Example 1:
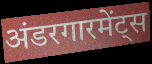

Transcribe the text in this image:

अंडरगारमेंट्स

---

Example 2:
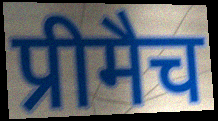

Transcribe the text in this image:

प्रीमैच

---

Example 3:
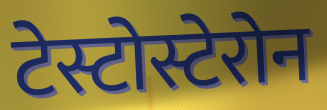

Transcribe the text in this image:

टेस्टोस्टेरोन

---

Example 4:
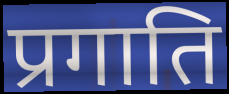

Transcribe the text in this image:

प्रगाति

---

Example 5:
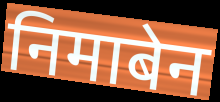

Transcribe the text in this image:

निमाबेन